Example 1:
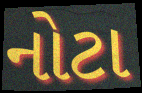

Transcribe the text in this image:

નોટા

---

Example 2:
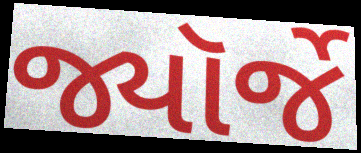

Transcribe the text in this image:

જ્યૉર્જે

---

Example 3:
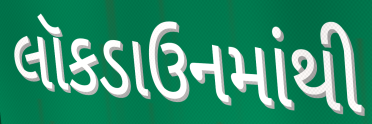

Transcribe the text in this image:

લૉકડાઉનમાંથી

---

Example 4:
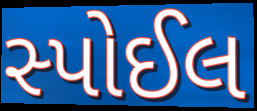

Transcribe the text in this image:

સ્પોઈલ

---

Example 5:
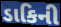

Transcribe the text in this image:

ડાકિની